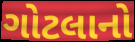
ગોટલાનો